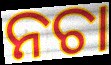
ନଚା